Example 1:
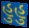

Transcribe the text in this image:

હુહુ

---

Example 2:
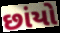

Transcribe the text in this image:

છાંયો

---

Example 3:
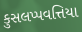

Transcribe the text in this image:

કુસલપ્પવત્તિયા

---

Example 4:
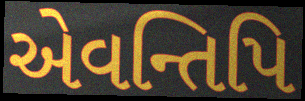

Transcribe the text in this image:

એવન્તિપિ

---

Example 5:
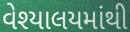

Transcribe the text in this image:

વેશ્યાલયમાંથી